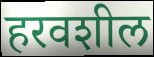
हरवशील